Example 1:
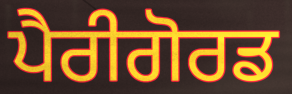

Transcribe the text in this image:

ਪੈਰੀਗੋਰਡ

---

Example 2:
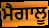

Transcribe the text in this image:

ਮੈਗਾਲੂ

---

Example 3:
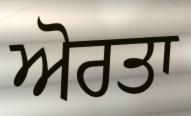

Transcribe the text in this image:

ਅੋਰਤਾ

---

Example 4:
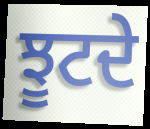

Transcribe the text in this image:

ਝੂਟਦੇ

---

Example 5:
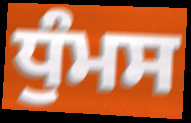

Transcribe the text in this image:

ਧੁੰਮਸ